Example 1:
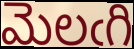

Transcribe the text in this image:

మెలఁగి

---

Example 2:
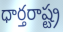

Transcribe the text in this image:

ధార్తరాష్ట్ర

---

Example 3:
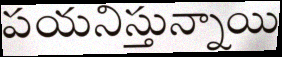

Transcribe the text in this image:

పయనిస్తున్నాయి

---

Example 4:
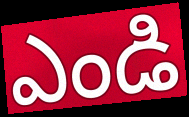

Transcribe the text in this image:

ఎండి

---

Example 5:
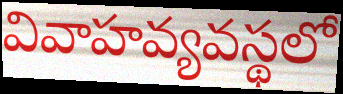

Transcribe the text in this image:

వివాహవ్యవస్థలో